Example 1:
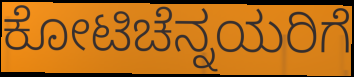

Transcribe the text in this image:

ಕೋಟಿಚೆನ್ನಯರಿಗೆ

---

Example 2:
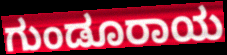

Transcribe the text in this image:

ಗುಂಡೂರಾಯ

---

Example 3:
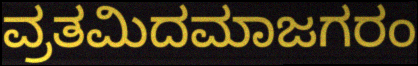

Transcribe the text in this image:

ವ್ರತಮಿದಮಾಜಗರಂ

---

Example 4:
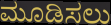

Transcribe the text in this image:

ಮೂಡಿಸಲು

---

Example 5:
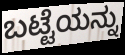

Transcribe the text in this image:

ಬಟ್ಟೆಯನ್ನು